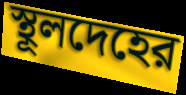
স্থূলদেহের